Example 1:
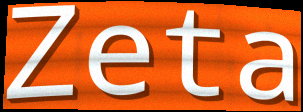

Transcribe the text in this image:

Zeta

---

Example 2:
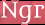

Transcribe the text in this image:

Ngr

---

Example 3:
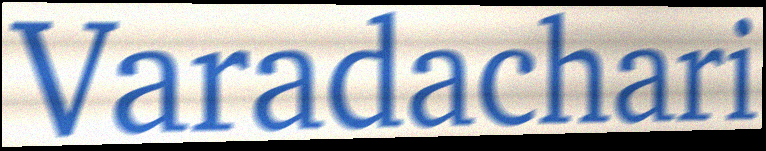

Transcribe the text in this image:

Varadachari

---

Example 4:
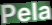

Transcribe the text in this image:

Pela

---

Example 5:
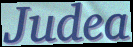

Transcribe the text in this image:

Judea